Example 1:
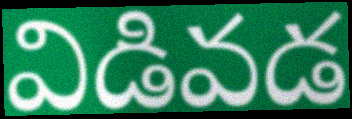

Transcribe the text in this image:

విడివడ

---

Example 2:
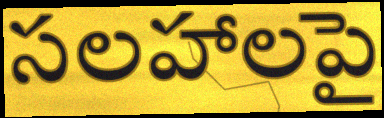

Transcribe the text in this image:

సలహాలపై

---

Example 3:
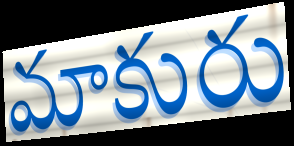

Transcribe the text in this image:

మాకురు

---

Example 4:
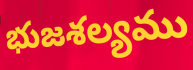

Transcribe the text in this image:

భుజశల్యము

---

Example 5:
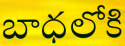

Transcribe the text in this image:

బాధలోకి